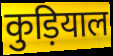
कुड़ियाल